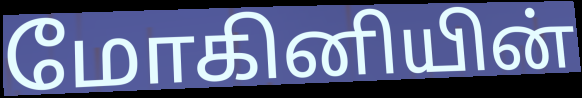
மோகினியின்